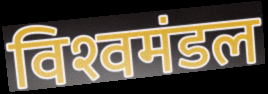
विश्वमंडल